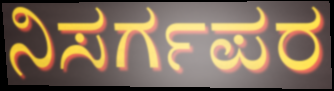
ನಿಸರ್ಗಪರ